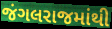
જંગલરાજમાંથી